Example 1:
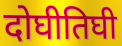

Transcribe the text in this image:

दोघीतिघी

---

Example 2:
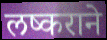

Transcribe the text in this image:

लष्कराने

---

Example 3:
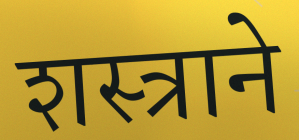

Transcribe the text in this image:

शस्त्राने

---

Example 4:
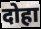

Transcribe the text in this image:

दोहा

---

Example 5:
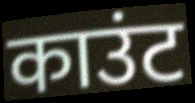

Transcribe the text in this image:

काउंट